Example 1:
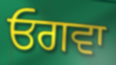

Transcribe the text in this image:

ਓਗਵਾ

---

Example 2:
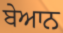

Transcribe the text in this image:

ਬੇਆਨ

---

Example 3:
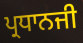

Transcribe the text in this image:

ਪ੍ਰਧਾਨਜੀ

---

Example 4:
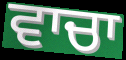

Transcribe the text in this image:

ਵਾਚਾ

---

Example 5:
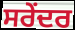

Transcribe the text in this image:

ਸਰੇਂਦਰ